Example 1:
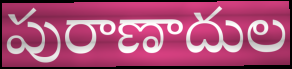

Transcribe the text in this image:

పురాణాదుల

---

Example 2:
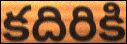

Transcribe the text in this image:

కదిరికి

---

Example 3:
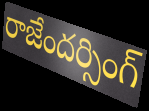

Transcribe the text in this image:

రాజేందర్సింగ్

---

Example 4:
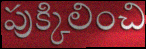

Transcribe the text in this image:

పుక్కిలించి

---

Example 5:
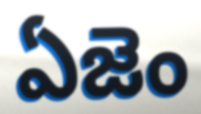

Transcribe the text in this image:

ఏజెం